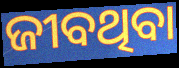
ଜୀବଥିବା